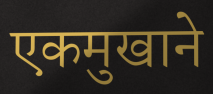
एकमुखाने